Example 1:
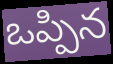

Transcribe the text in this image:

ఒప్పిన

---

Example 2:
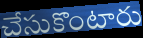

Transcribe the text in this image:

చేసుకొంటారు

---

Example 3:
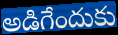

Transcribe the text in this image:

అడిగేందుకు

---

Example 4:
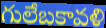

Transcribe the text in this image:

గులేబకావళి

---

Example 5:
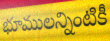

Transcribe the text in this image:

భూములన్నింటికీ